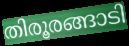
തിരൂരങ്ങാടി